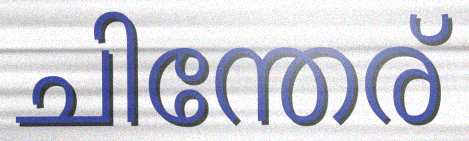
ചിന്തേര്